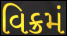
વિક્રમં